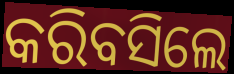
କରିବସିଲେ